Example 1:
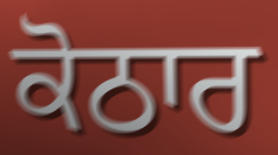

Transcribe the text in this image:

ਕੋਠਾਰ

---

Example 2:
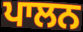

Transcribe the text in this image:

ਪਾਲਨ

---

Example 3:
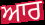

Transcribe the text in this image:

ਆਰ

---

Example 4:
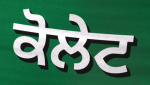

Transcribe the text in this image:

ਕੋਲੇਟ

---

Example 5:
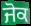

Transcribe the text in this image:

ਜੋਕ